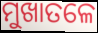
ମୁଖାତଳେ